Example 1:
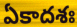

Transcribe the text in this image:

ఏకాదశః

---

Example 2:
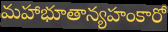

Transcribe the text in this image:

మహాభూతాన్యహంకారో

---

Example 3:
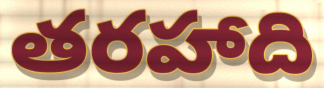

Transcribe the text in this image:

తరహాది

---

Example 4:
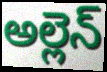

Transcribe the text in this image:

అల్లెన్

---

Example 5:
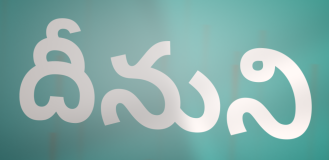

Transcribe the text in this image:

దీనుని